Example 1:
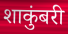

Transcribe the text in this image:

शाकुंबरी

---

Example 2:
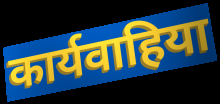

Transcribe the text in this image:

कार्यवाहिया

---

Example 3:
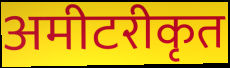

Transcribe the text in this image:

अमीटरीकृत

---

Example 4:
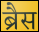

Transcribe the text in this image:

ब्रैस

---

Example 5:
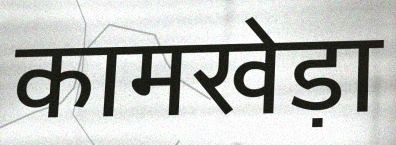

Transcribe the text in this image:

कामखेड़ा